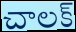
చాలక్